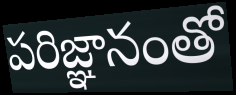
పరిజ్ఞానంతో